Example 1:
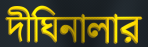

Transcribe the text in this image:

দীঘিনালার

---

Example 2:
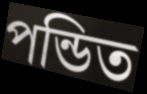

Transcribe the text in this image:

পন্ডিত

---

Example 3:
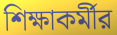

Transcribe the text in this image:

শিক্ষাকর্মীর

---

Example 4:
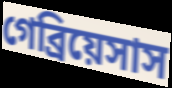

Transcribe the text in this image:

গেব্রিয়েসাস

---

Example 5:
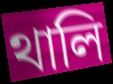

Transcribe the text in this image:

থালি